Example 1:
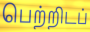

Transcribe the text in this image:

பெற்றிடப்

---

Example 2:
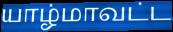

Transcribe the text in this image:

யாழ்மாவட்ட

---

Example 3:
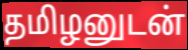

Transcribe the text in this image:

தமிழனுடன்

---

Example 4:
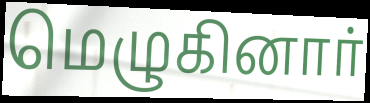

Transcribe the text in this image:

மெழுகினார்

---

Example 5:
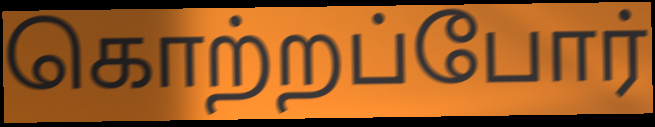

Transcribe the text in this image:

கொற்றப்போர்